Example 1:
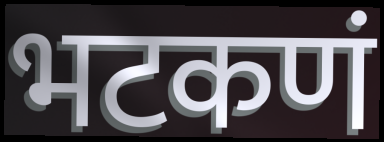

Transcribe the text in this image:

भटकणं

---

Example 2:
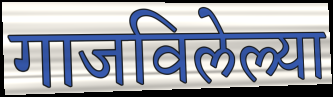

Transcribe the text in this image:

गाजविलेल्या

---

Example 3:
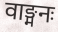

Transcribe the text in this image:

वाङ्मनः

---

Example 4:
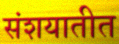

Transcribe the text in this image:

संशयातीत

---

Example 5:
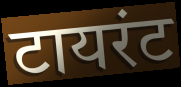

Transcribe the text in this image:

टायरंट